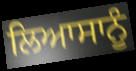
ਲਿਆਸਾਨੂੰ